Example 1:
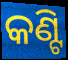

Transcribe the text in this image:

କଣ୍ଟି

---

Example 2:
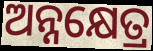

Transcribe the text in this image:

ଅନ୍ନକ୍ଷେତ୍ର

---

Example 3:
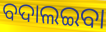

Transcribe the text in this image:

ବଦାଲଇବା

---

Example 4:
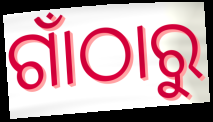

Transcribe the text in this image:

ଗାଁଠାରୁ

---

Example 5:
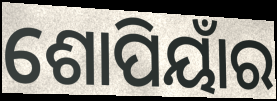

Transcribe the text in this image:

ଶୋପିୟାଁର